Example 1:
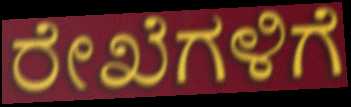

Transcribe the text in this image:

ರೇಖೆಗಳಿಗೆ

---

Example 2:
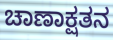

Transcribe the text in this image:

ಚಾಣಾಕ್ಷತನ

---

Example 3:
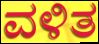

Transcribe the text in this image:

ವಳಿತ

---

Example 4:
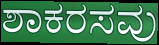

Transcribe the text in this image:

ಶಾಕರಸವು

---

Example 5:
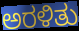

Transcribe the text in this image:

ಅರಳಿತು